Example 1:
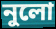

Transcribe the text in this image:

নুলো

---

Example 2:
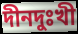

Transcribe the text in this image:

দীনদুঃখী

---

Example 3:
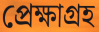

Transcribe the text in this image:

প্রেক্ষাগ্রহ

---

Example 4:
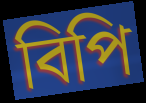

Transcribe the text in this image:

বিপি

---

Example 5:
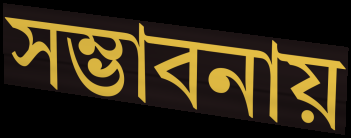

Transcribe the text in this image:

সম্ভাবনায়